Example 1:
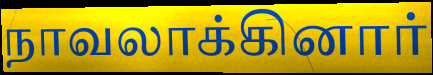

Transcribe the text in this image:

நாவலாக்கினார்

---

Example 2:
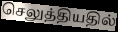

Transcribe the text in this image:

செலுத்தியதில்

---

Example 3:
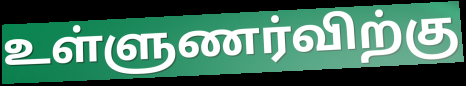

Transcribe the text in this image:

உள்ளுணர்விற்கு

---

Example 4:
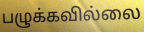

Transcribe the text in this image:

பழுக்கவில்லை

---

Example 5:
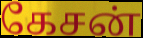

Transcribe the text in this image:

கேசன்